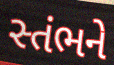
સ્તંભને